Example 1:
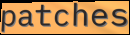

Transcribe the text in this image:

patches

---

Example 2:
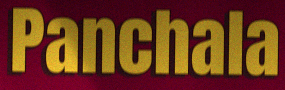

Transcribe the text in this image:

Panchala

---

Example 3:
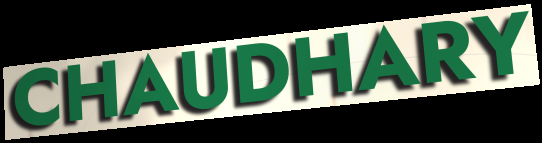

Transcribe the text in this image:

CHAUDHARY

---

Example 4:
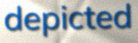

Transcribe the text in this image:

depicted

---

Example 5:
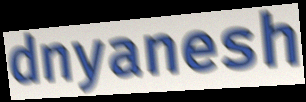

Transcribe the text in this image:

dnyanesh